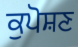
ਕੁਪੋਸ਼ਣ